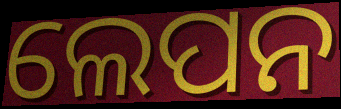
ଲେପନ